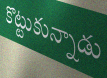
కొట్టుకున్నాడు